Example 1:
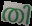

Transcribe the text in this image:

തി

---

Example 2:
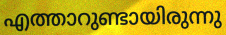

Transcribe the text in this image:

എത്താറുണ്ടായിരുന്നു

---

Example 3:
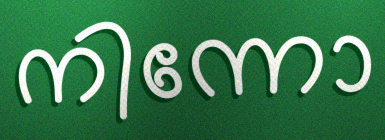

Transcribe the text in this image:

നിന്നോ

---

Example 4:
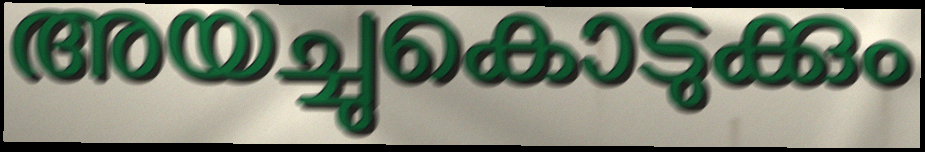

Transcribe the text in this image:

അയച്ചുകൊടുക്കും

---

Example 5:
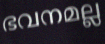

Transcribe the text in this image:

ഭവനമല്ല